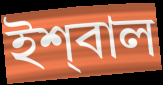
ইশ্‌বাল